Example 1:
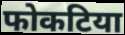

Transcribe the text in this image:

फोकटिया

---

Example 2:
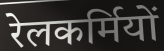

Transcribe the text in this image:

रेलकर्मियों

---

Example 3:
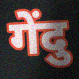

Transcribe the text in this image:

गेंदु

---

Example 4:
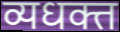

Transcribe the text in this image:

व्यधक्त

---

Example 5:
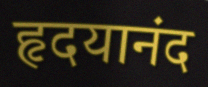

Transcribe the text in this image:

हृदयानंद